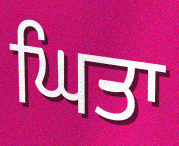
ਘਿਤਾ